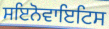
ਸਇਨੋਵਾਇਟਿਸ